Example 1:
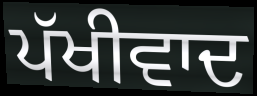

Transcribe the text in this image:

ਪੱਖੀਵਾਦ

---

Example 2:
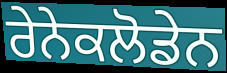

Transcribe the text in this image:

ਰੇਨੇਕਲੋਡੇਨ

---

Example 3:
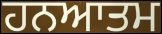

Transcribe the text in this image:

ਹਨਆਤਮ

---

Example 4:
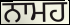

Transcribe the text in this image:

ਨਾਮਹ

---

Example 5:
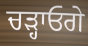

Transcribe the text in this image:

ਚੜ੍ਹਾਓਗੇ